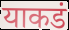
याकडं